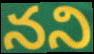
నని